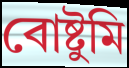
বোষ্টুমি